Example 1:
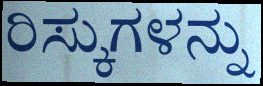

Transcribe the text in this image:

ರಿಸ್ಕುಗಳನ್ನು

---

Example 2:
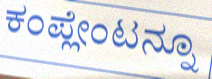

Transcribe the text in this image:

ಕಂಪ್ಲೇಂಟನ್ನೂ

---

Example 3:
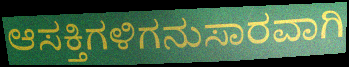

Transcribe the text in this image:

ಆಸಕ್ತಿಗಳಿಗನುಸಾರವಾಗಿ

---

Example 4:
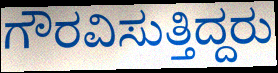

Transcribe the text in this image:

ಗೌರವಿಸುತ್ತಿದ್ದರು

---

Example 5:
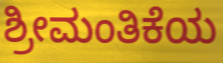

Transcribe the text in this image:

ಶ್ರೀಮಂತಿಕೆಯ